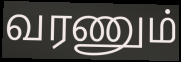
வரணும்